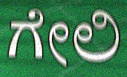
ಗೇಲಿ